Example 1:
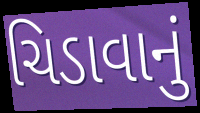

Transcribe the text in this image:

ચિડાવાનું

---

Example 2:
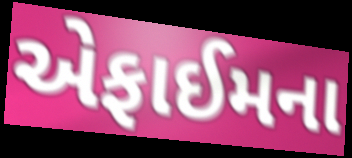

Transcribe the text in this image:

એફાઈમના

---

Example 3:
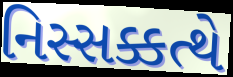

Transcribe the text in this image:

નિસ્સક્કત્થે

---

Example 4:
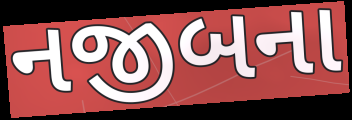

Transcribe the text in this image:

નજીબના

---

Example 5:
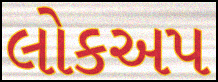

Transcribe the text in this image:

લોકઅપ